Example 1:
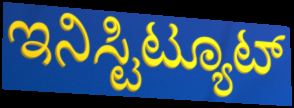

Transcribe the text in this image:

ಇನಿಸ್ಟಿಟ್ಯೂಟ್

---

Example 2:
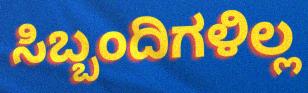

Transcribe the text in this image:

ಸಿಬ್ಬಂದಿಗಳಿಲ್ಲ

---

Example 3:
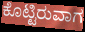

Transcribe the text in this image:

ಕೊಟ್ಟಿರುವಾಗ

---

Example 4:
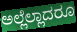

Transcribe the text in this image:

ಅಲ್ಲೆಲ್ಲಾದರೂ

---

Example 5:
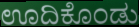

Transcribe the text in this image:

ಊದಿಕೊಂಡು